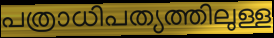
പത്രാധിപത്യത്തിലുള്ള